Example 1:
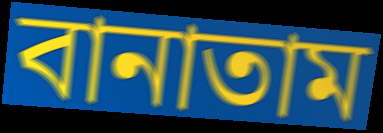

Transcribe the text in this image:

বানাতাম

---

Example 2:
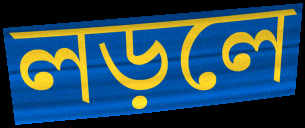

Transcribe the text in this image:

লড়লে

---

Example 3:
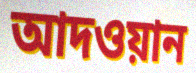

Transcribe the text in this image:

আদওয়ান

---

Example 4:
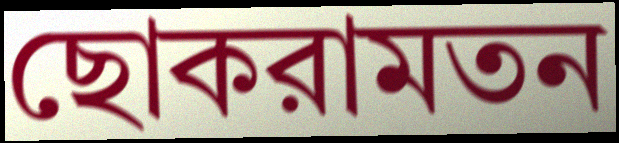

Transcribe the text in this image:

ছোকরামতন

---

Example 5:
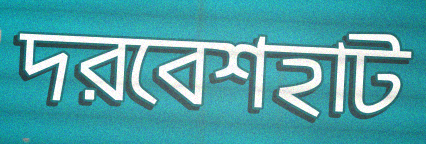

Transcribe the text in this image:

দরবেশহাট